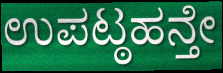
ಉಪಟ್ಠಹನ್ತೇ